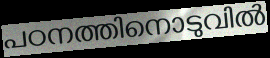
പഠനത്തിനൊടുവിൽ